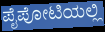
ಪೈಪೋಟಿಯಲ್ಲಿ